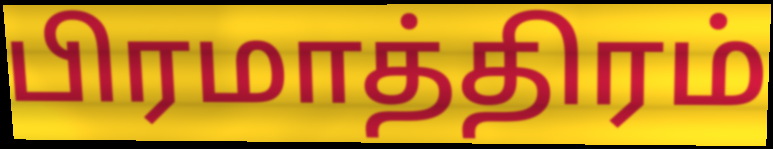
பிரமாத்திரம்